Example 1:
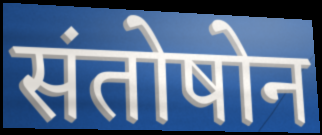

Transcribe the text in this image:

संतोषोन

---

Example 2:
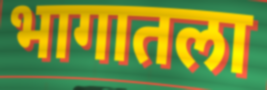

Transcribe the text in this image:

भागातला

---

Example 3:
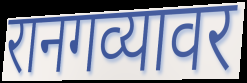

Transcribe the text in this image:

रानगव्यावर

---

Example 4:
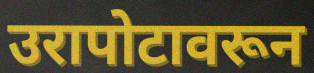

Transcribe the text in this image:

उरापोटावरून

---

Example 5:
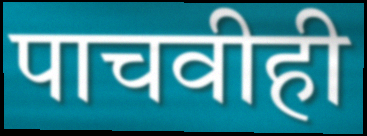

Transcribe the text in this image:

पाचवीही